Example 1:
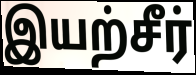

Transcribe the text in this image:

இயற்சீர்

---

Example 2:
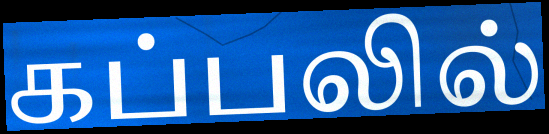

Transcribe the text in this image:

கப்பலில்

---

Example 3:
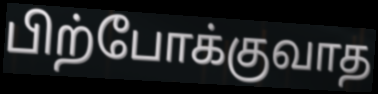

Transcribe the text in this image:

பிற்போக்குவாத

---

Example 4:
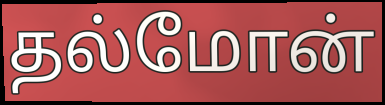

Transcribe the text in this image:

தல்மோன்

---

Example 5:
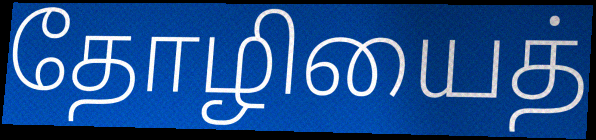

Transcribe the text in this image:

தோழியைத்